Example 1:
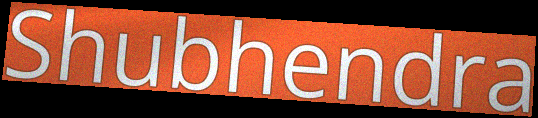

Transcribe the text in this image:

Shubhendra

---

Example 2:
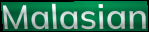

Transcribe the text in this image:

Malasian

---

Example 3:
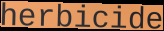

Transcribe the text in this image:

herbicide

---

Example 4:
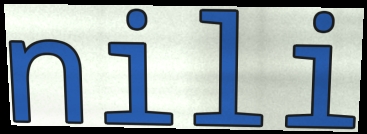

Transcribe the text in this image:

nili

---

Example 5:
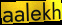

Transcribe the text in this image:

aalekh